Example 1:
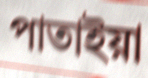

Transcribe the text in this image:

পাতাইয়া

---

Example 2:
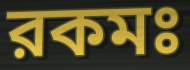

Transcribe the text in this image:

রকমঃ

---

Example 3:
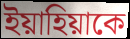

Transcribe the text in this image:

ইয়াহিয়াকে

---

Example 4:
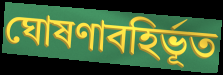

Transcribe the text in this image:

ঘোষণাবহির্ভূত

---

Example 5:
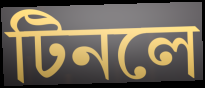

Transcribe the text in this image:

টিনলে